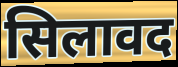
सिलावद